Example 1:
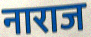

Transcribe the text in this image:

नाराज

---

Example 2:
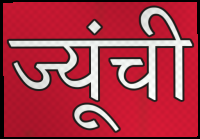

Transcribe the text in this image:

ज्यूंची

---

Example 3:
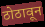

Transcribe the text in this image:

ठोठावून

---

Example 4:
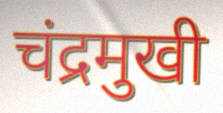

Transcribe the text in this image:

चंद्रमुखी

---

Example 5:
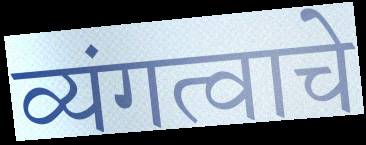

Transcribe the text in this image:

व्यंगत्वाचे